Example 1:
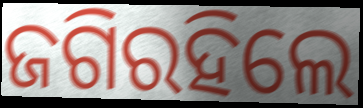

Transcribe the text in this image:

ଜଗିରହିଲେ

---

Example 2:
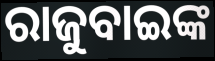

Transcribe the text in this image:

ରାଜୁବାଇଙ୍କ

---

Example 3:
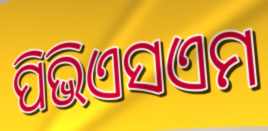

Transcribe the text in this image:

ପିଭିଏସଏମ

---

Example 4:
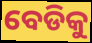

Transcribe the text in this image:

ବେଡିକୁ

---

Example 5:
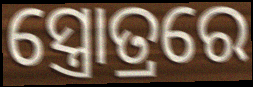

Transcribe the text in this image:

ସ୍ତ୍ରୋତ୍ରରେ